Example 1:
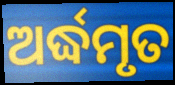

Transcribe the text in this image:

ଅର୍ଦ୍ଧମୃତ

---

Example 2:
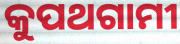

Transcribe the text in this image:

କୁପଥଗାମୀ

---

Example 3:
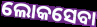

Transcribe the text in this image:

ଲୋକସେବା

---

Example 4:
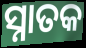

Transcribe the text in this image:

ସ୍ନାତକ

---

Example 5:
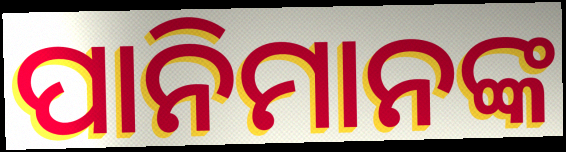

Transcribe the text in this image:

ପାନିମାନଙ୍କ